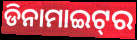
ଡିନାମାଇଟ୍‌ର